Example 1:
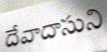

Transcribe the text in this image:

దేవాదాసుని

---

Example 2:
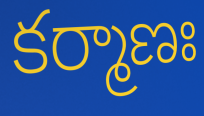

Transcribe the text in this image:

కర్మాణః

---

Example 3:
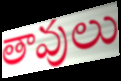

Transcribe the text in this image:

తావులు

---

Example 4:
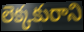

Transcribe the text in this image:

లెక్కకురాని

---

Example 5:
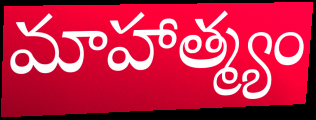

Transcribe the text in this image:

మాహాత్మ్యం